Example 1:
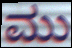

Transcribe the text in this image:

ಮು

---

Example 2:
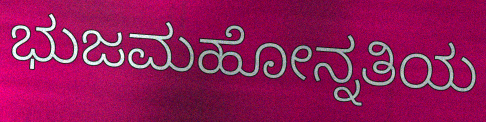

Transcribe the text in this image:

ಭುಜಮಹೋನ್ನತಿಯ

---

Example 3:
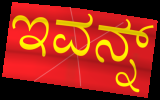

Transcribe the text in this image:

ಇವನ್ನ್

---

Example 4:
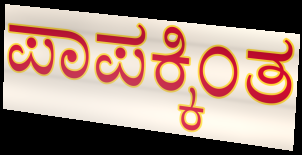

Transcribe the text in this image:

ಪಾಪಕ್ಕಿಂತ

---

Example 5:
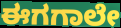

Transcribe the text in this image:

ಈಗಗಾಲೇ